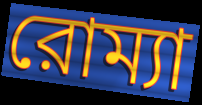
রোম্যা